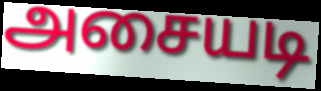
அசையடி